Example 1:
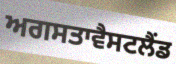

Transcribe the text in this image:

ਅਗਸਤਾਵੈਸਟਲੈਂਡ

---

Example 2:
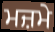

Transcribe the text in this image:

ਮਜ਼ਮੇ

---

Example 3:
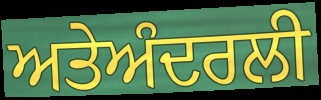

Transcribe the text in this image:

ਅਤੇਅੰਦਰਲੀ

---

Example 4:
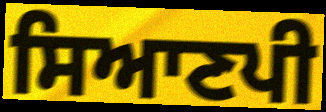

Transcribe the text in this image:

ਸਿਆਣਪੀ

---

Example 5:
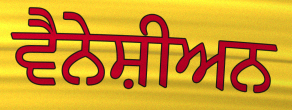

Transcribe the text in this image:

ਵੈਨੇਸ਼ੀਅਨ